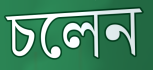
চলেন